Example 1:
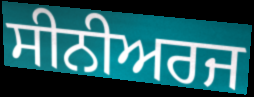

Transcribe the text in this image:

ਸੀਨੀਅਰਜ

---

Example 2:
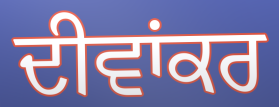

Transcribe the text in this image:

ਦੀਵਾਂਕਰ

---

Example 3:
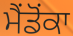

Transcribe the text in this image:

ਮੈਂਡੋਂਕਾ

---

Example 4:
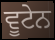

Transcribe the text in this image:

ਵੂਟੇਨ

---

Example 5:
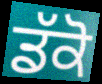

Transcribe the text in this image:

ਡੱਕੋ